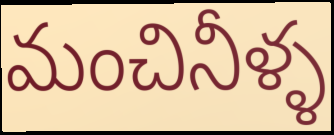
మంచినీళ్ళ